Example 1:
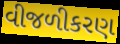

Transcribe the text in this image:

વીજળીકરણ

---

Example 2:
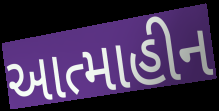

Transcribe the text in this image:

આત્માહીન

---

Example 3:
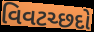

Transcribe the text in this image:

વિવટચ્છદો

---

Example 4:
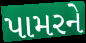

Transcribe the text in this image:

પામરને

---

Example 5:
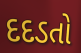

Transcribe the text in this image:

દદડતો